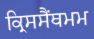
ਕ੍ਰਿਸਸੈਂਥਮਮ